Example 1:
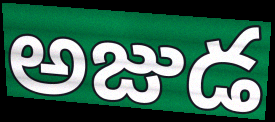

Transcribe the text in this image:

అజుడ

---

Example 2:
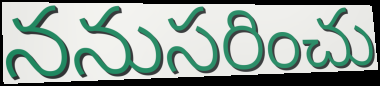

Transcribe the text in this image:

ననుసరించు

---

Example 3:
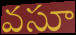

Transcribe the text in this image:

వసూ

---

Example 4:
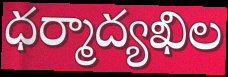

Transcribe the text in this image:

ధర్మాద్యఖిల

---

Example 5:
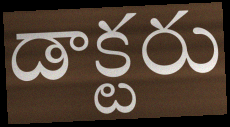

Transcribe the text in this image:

డాక్టరు